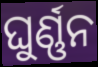
ଘୁର୍ଣ୍ଣନ